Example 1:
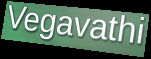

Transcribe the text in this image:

Vegavathi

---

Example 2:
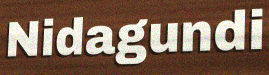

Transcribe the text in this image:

Nidagundi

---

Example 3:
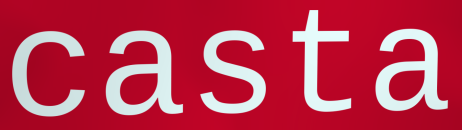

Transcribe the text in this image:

casta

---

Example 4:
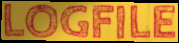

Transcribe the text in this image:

LOGFILE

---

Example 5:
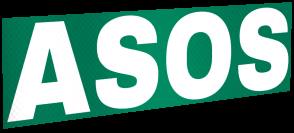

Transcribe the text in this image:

ASOS